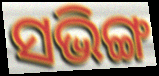
ସଭିଙ୍ଗ